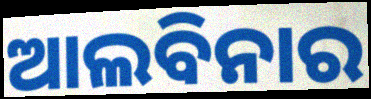
ଆଲବିନାର